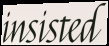
insisted